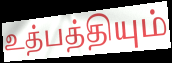
உத்பத்தியும்